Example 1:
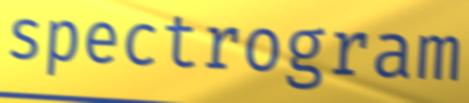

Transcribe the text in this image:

spectrogram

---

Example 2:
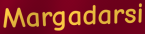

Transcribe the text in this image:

Margadarsi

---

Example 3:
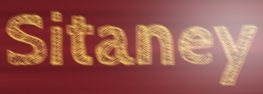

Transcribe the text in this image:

Sitaney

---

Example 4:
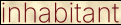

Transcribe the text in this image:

inhabitant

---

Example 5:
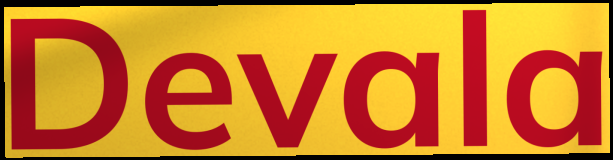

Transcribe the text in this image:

Devala